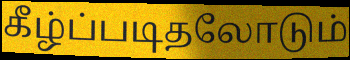
கீழ்ப்படிதலோடும்